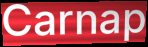
Carnap